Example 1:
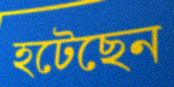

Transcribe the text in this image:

হটেছেন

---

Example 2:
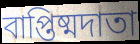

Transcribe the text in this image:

বাপ্তিষ্মদাতা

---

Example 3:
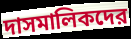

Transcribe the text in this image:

দাসমালিকদের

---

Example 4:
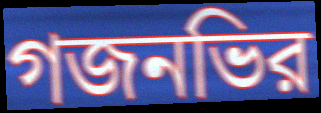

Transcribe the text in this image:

গজনভির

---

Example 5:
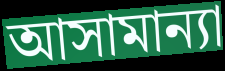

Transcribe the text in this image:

আসামান্যা